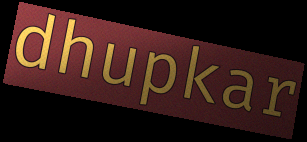
dhupkar